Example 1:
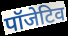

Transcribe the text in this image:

पॉजेटिव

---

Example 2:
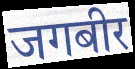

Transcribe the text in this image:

जगबीर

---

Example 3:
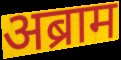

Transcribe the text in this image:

अब्राम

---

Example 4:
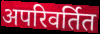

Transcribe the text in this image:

अपरिवर्तित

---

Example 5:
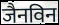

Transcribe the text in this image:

जैनविन